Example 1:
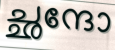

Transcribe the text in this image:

ച്ഛന്ദോ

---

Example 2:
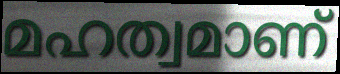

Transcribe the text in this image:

മഹത്വമാണ്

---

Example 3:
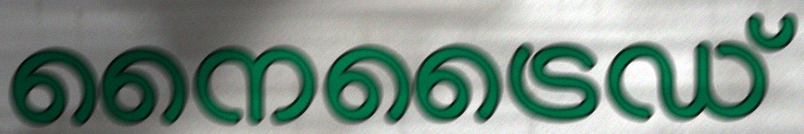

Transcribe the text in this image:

നൈട്രൈഡ്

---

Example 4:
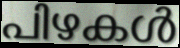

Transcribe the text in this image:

പിഴകൾ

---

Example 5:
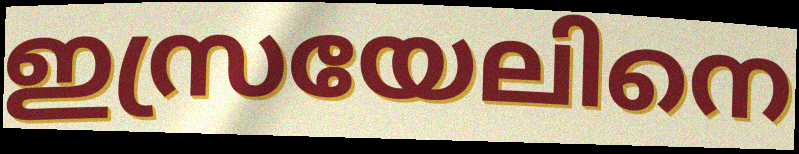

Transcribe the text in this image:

ഇസ്രയേലിനെ